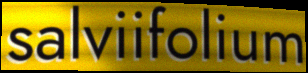
salviifolium